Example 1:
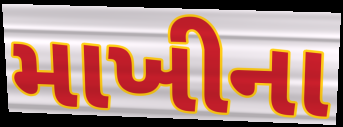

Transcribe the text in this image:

માખીના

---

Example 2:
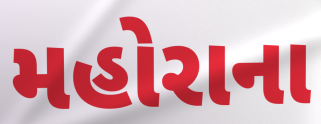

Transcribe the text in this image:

મહોરાના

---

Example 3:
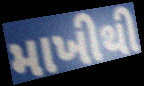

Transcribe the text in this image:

માખીથી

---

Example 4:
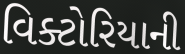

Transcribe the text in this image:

વિક્ટોરિયાની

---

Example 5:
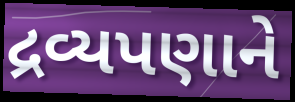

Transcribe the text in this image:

દ્રવ્યપણાને